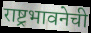
राष्ट्रभावनेची